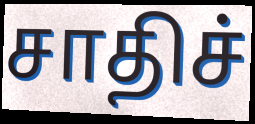
சாதிச்